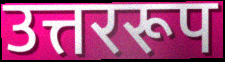
उत्तररूप